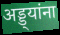
अड्ड्यांना